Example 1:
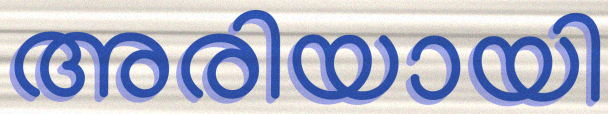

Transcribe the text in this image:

അരിയായി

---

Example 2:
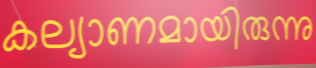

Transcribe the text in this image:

കല്യാണമായിരുന്നു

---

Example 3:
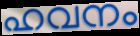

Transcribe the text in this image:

ഹവനം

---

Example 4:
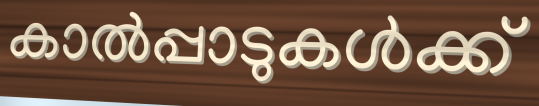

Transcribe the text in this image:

കാൽപ്പാടുകൾക്ക്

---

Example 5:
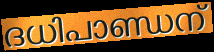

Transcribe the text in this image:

ദധിപാണ്ഡന്